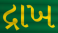
દ્રાખ